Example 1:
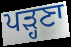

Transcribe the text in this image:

ਪੜ੍ਹਣਾ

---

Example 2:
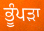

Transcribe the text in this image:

ਭੂੰਪੜਾ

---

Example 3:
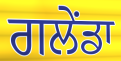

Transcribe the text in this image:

ਗਲੇਂਡਾ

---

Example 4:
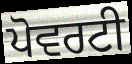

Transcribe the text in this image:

ਪੋਵਰਟੀ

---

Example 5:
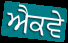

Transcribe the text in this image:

ਐਕਵੇ